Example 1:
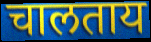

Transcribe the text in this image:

चालताय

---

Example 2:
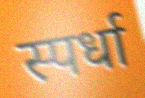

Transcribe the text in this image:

स्पर्धा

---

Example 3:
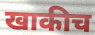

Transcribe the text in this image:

खाकीच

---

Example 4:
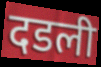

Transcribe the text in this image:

दडली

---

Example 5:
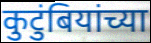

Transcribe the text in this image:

कुटुंबियांच्या